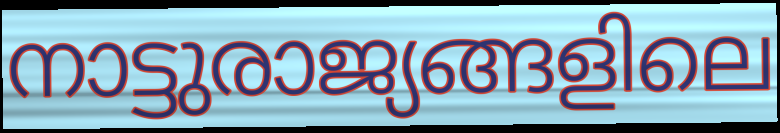
നാട്ടുരാജ്യങ്ങളിലെ